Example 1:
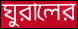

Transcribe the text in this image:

ঘুরালের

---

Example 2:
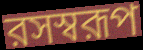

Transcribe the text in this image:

রসস্বরূপ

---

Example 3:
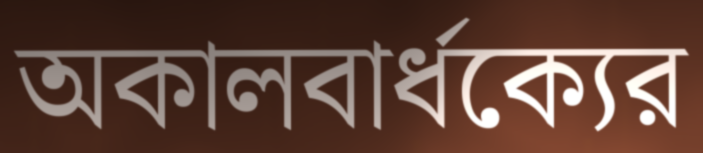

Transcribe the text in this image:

অকালবার্ধক্যের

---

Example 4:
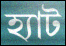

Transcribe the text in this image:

হ্যাট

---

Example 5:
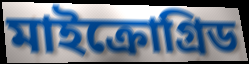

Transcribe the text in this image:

মাইক্রোগ্রিড